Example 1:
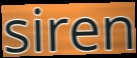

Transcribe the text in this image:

siren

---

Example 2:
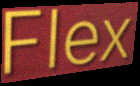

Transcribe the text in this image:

Flex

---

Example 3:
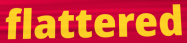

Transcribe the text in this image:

flattered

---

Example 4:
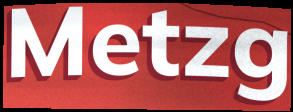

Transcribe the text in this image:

Metzg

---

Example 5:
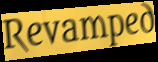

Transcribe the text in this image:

Revamped